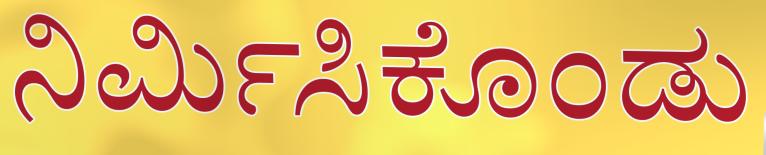
ನಿರ್ಮಿಸಿಕೊಂಡು